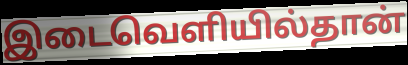
இடைவெளியில்தான்